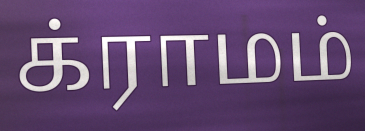
க்ராமம்